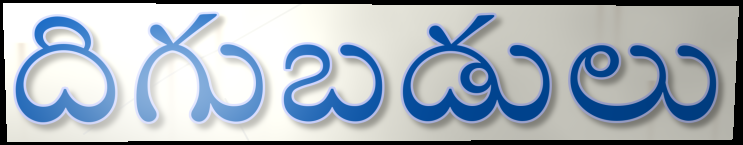
దిగుబడులు